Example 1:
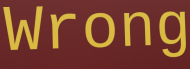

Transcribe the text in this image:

Wrong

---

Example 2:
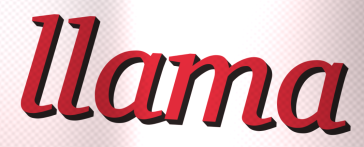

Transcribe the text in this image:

llama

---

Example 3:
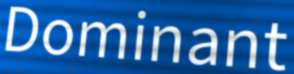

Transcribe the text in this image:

Dominant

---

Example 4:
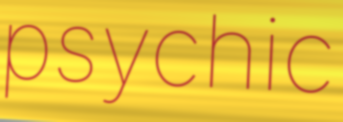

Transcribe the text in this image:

psychic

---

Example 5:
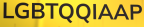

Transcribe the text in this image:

LGBTQQIAAP